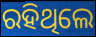
ରହିଥିଲେ